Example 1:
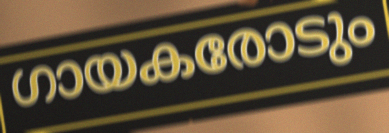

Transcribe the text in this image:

ഗായകരോടും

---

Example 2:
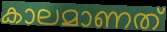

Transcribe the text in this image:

കാലമാണത്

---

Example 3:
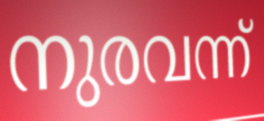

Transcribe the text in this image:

നുരവന്ന്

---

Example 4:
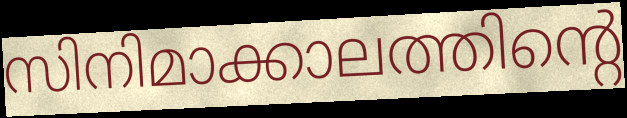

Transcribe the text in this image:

സിനിമാക്കാലത്തിന്റെ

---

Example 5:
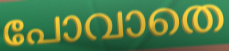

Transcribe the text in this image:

പോവാതെ